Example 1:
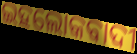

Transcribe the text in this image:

ଇହଲୋକବାଦୀ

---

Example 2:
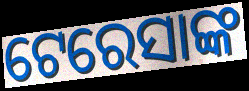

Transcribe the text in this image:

ଟେରେସାଙ୍କ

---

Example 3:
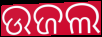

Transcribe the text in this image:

ଉଜଲ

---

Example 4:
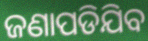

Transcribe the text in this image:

ଜଣାପଡିଯିବ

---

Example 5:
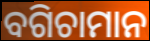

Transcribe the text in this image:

ବଗିଚାମାନ